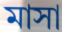
মাসা